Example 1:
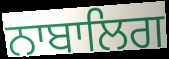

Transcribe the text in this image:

ਨਾਬਾਲਿਗ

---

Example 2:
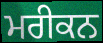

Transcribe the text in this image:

ਮਰੀਕਨ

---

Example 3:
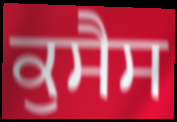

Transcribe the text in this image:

ਕੁਸੈਸ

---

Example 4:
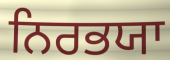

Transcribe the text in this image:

ਨਿਰਭਯਾ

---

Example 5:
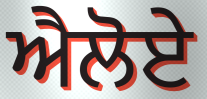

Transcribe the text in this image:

ਐਲੋਏ